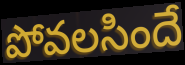
పోవలసిందే